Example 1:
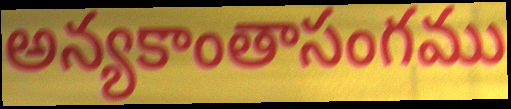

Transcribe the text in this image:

అన్యకాంతాసంగము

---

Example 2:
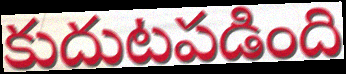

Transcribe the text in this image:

కుదుటపడింది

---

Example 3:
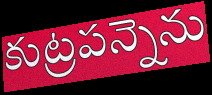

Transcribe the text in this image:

కుట్రపన్నెను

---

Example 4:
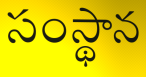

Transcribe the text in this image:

సంస్థాన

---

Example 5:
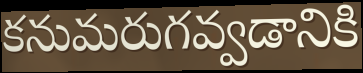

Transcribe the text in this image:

కనుమరుగవ్వడానికి